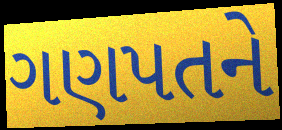
ગણપતને